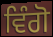
ਵਿੰਗੋ